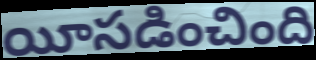
యీసడించింది